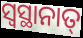
ସ୍ଵସ୍ଥାନାତ୍